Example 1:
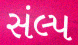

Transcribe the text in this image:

સંલ્પ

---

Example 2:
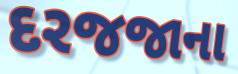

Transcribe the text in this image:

દરજજાના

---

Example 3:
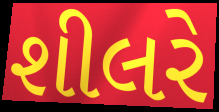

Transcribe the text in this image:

શીલરે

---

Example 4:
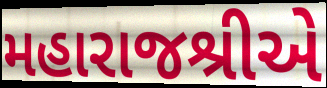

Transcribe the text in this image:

મહારાજશ્રીએ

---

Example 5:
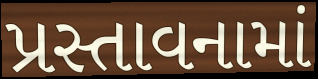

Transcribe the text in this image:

પ્રસ્તાવનામાં